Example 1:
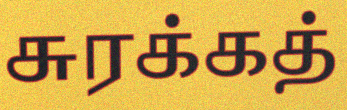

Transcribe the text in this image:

சுரக்கத்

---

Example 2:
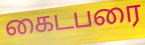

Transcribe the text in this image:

கைடபரை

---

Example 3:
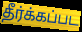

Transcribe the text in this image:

தீர்க்கப்பட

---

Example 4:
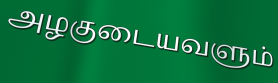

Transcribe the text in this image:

அழகுடையவளும்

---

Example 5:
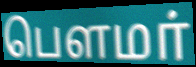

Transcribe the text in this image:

பௌமர்